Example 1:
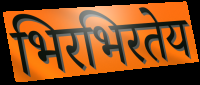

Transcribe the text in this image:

भिरभिरतेय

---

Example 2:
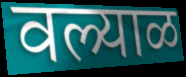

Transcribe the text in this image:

वल्याळ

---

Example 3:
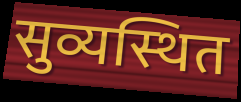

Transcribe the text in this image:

सुव्यस्थित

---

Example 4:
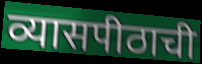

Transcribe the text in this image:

व्यासपीठाची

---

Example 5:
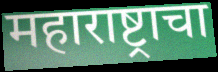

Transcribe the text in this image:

महाराष्ट्राचा